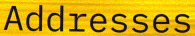
Addresses